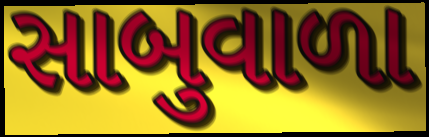
સાબુવાળા